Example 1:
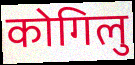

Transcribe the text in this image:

कोगिलु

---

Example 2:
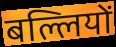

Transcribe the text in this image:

बल्लियों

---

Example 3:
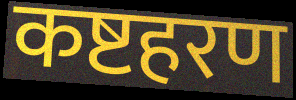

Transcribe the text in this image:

कष्टहरण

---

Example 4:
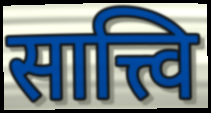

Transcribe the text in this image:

सात्त्वि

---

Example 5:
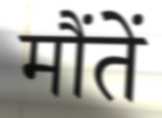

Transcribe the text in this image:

मौंतें